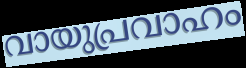
വായുപ്രവാഹം